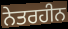
ਨੇਤਰਹੀਨ